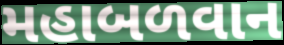
મહાબળવાન